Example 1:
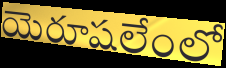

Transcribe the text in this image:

యెరూషలేంలో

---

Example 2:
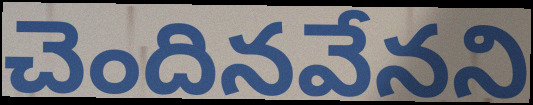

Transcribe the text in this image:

చెందినవేనని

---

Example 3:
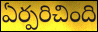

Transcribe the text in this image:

ఏర్పరిచింది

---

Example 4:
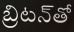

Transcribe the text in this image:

బ్రిటన్‌తో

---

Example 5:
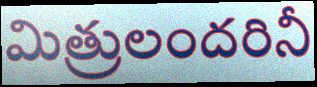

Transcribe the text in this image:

మిత్రులందరినీ